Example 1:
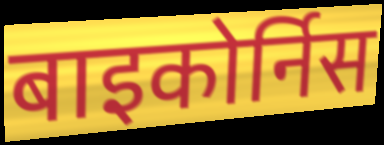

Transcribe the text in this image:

बाइकोर्निस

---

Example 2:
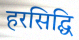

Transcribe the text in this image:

हरसिद्घि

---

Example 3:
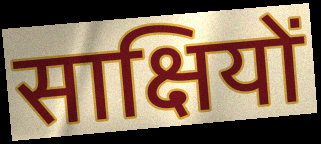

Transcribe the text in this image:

साक्षियों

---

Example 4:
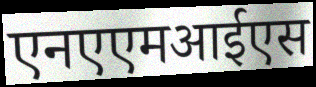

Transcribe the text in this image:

एनएएमआईएस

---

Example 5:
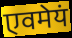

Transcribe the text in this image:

एवमेयं